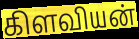
கிளவியன்